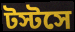
টস্টসে